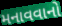
મનાવવાનો